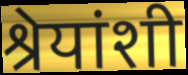
श्रेयांशी